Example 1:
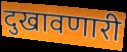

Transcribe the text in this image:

दुखावणारी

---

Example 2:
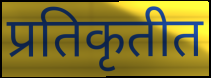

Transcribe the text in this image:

प्रतिकृतीत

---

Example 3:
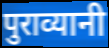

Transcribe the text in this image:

पुराव्यानी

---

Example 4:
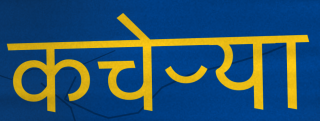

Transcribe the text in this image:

कचेऱ्या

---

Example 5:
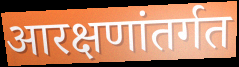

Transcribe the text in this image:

आरक्षणांतर्गत